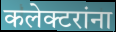
कलेक्टरांना